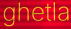
ghetla